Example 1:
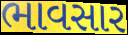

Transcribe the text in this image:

ભાવસાર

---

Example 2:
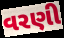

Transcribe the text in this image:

વરણી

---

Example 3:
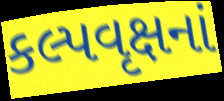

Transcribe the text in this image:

કલ્પવૃક્ષનાં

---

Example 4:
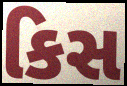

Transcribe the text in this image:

કિસ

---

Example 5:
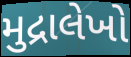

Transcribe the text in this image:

મુદ્રાલેખો